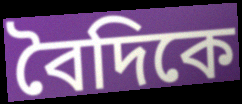
বৈদিকে